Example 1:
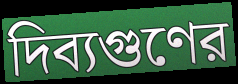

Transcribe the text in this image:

দিব্যগুণের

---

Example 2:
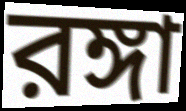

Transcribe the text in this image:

রঙ্গা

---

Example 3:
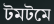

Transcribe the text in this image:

টমটমে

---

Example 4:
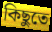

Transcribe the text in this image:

কিছুতে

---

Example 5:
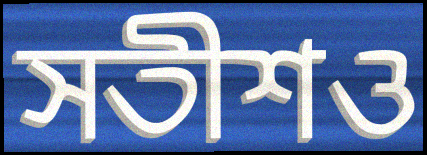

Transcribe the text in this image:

সতীশও